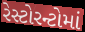
રેસ્ટોરન્ટોમાં